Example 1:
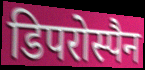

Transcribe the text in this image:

डिपरोस्पैन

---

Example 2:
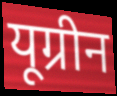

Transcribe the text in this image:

यूग्रीन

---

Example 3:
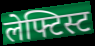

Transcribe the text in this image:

लेफ्टिस्ट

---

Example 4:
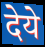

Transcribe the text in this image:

देये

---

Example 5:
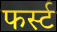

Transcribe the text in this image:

फर्स्ट